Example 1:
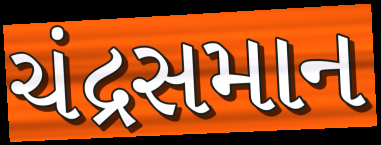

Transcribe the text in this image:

ચંદ્રસમાન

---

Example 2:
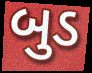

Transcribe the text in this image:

બુડ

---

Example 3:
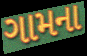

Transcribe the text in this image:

ગામના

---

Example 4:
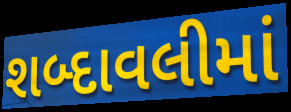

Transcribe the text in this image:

શબ્દાવલીમાં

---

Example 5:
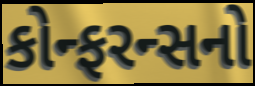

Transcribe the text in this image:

કોન્ફરન્સનો